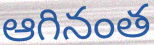
ఆగినంత